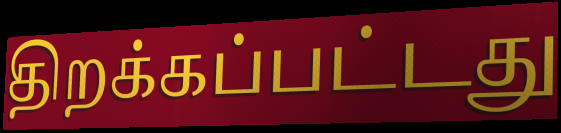
திறக்கப்பட்டது